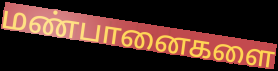
மண்பானைகளை